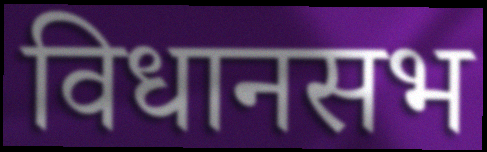
विधानसभ